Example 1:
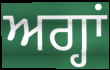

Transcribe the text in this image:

ਅਗ੍ਹਾਂ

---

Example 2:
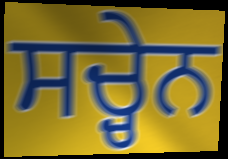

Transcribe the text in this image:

ਸਚ੍ਚੇਨ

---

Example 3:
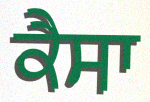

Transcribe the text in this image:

ਕੈਸਾ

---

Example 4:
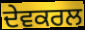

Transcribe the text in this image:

ਦੇਵਕਰਲ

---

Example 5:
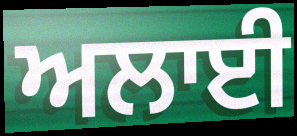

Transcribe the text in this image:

ਅਲਾਈ